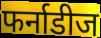
फर्नाडीज